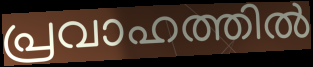
പ്രവാഹത്തിൽ